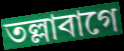
তল্লাবাগে